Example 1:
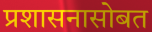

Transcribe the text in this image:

प्रशासनासोबत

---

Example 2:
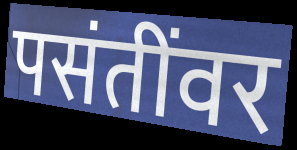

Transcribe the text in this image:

पसंतींवर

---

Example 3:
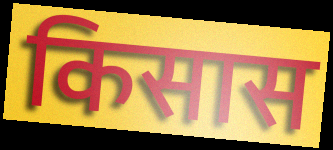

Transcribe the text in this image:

किसास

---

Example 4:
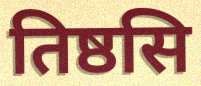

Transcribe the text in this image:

तिष्ठसि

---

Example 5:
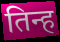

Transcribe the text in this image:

तिन्ह